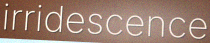
irridescence